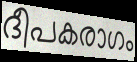
ദീപകരാഗം